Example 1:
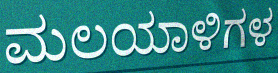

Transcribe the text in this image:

ಮಲಯಾಳಿಗಳ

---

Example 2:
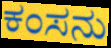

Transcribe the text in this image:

ಕಂಸನು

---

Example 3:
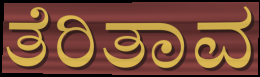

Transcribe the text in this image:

ತೆರಿತಾವ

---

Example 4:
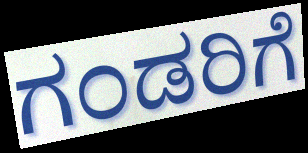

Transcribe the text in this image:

ಗಂಡರಿಗೆ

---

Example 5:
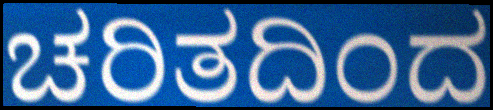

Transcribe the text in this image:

ಚರಿತದಿಂದ